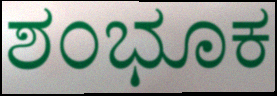
ಶಂಭೂಕ